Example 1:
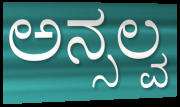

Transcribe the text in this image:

ಅನ್ಸಲ್ವ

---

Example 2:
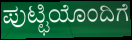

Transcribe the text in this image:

ಪುಟ್ಟಿಯೊಂದಿಗೆ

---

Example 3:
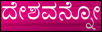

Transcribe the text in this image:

ದೇಶವನ್ನೋ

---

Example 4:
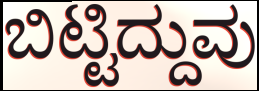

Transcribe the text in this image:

ಬಿಟ್ಟಿದ್ದುವು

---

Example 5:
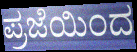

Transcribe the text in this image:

ಪ್ರಜೆಯಿಂದ